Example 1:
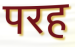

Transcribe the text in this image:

परह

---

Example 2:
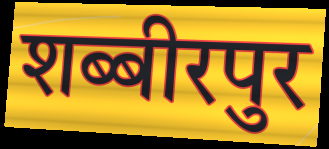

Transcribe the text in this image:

शब्‍बीरपुर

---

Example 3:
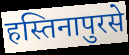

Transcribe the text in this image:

हस्तिनापुरसे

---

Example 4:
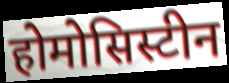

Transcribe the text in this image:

होमोसिस्टीन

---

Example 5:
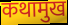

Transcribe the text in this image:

कथामुख